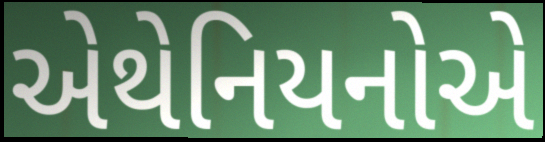
એથેનિયનોએ